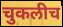
चुकलीच